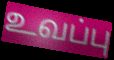
உவப்பு